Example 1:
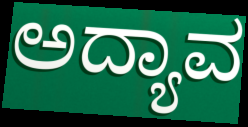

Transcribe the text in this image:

ಅದ್ಯಾವ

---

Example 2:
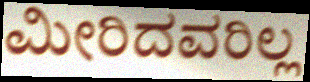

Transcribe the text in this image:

ಮೀರಿದವರಿಲ್ಲ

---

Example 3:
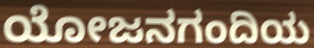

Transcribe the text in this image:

ಯೋಜನಗಂದಿಯ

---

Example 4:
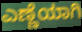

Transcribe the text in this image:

ಎಣ್ಣೆಯಾಗಿ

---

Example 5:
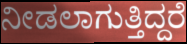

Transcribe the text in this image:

ನೀಡಲಾಗುತ್ತಿದ್ದರೆ